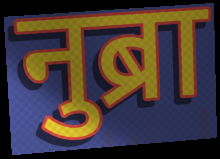
नुब्रा